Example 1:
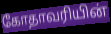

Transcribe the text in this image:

கோதாவரியின்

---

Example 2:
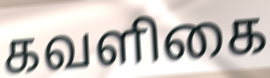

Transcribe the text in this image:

கவளிகை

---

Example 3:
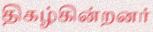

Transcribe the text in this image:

திகழ்கின்றனர்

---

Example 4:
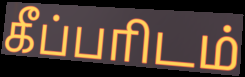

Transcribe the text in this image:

கீப்பரிடம்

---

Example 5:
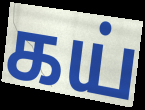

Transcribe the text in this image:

கய்